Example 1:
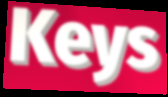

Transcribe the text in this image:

Keys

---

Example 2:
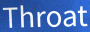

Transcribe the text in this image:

Throat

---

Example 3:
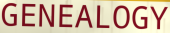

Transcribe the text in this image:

GENEALOGY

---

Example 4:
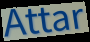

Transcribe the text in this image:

Attar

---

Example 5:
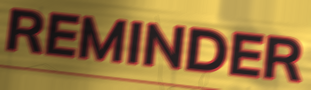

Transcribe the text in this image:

REMINDER